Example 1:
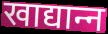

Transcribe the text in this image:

खाद्यान्न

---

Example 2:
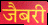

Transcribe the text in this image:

जैबरी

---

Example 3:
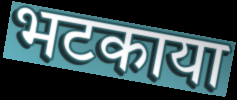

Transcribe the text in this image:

भटकाया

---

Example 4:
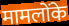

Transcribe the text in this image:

मामलोंके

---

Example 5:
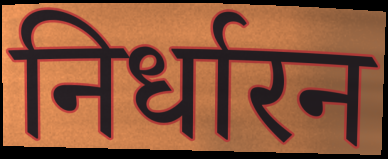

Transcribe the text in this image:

निर्धारन